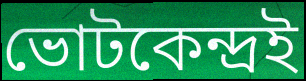
ভোটকেন্দ্রই